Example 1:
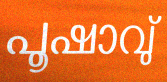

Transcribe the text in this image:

പൂഷാവു്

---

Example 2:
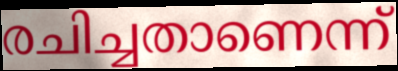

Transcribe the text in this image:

രചിച്ചതാണെന്ന്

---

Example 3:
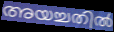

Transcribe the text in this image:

അയച്ചതിൽ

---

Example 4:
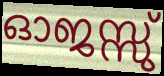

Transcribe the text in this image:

ഓജസ്സു്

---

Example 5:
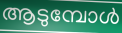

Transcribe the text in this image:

ആടുമ്പോൾ